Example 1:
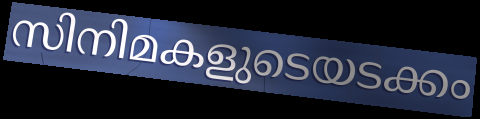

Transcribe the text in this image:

സിനിമകളുടെയടക്കം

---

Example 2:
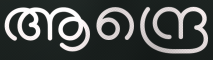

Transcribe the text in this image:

ആന്ദ്രെ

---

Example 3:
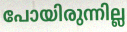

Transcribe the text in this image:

പോയിരുന്നില്ല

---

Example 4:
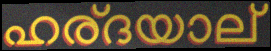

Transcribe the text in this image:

ഹര്ദയാല്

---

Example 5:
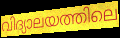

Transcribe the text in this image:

വിദ്യാലയത്തിലെ